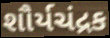
શૌર્યચંદ્રક